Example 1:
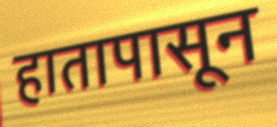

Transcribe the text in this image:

हातापासून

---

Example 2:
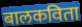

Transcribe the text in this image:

बालकविता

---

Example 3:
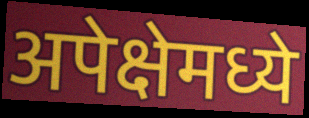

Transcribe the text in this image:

अपेक्षेमध्ये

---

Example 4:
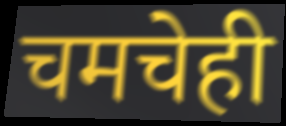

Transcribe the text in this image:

चमचेही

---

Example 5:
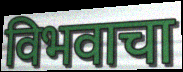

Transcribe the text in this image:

विभवाचा